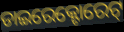
ଡାଇରେକ୍ଟୋରେଟ୍